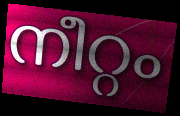
നീറ്റം